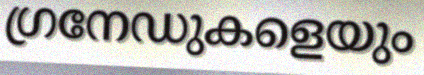
ഗ്രനേഡുകളെയും